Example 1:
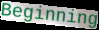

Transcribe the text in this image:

Beginning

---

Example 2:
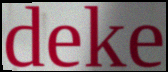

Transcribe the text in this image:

deke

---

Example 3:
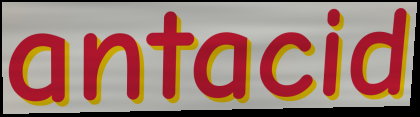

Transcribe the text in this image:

antacid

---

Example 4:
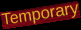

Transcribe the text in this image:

Temporary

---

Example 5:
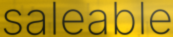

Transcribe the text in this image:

saleable